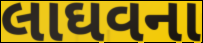
લાઘવના